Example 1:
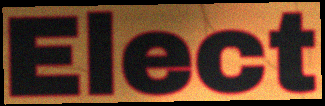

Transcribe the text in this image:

Elect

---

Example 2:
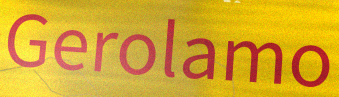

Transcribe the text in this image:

Gerolamo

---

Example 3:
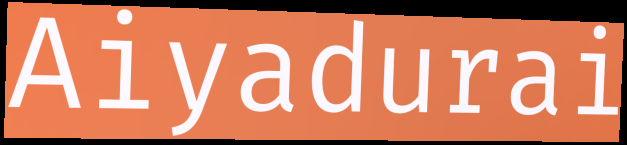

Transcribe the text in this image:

Aiyadurai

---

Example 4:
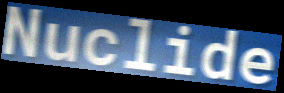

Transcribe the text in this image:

Nuclide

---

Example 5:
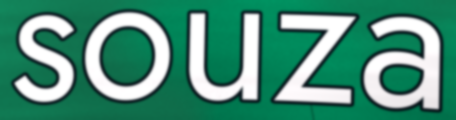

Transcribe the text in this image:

souza